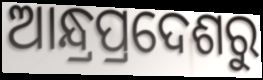
ଆନ୍ଧ୍ରପ୍ରଦେଶରୁ